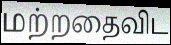
மற்றதைவிட